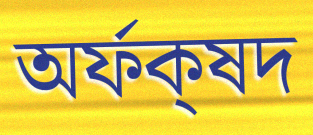
অর্ফক্‌ষদ